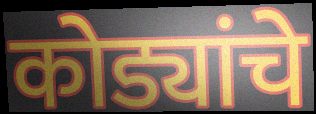
कोड्यांचे